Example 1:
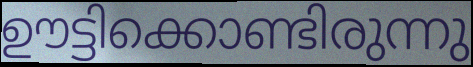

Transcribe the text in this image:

ഊട്ടിക്കൊണ്ടിരുന്നു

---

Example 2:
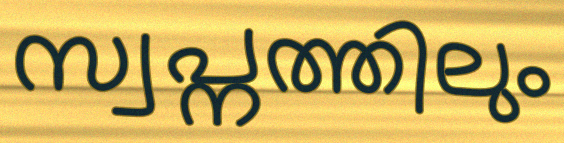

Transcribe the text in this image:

സ്വപ്നത്തിലും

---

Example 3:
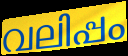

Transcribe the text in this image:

വലിപ്പം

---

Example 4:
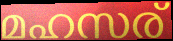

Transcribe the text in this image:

മഹസര്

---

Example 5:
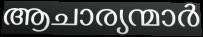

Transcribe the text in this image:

ആചാര്യന്മാർ